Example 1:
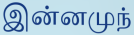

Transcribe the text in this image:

இன்னமுந்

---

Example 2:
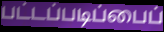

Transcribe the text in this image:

பட்டப்படிப்பைப்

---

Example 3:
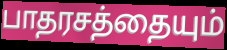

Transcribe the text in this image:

பாதரசத்தையும்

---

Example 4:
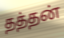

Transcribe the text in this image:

தத்தன்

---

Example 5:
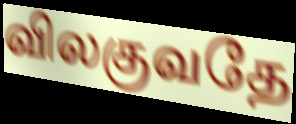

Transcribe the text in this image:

விலகுவதே